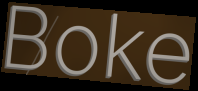
Boke